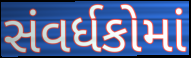
સંવર્ધકોમાં